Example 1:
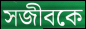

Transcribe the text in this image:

সজীবকে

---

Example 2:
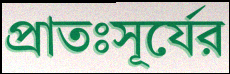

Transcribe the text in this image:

প্রাতঃসূর্যের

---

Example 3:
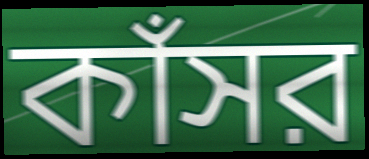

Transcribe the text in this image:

কাঁসর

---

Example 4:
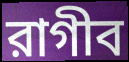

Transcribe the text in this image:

রাগীব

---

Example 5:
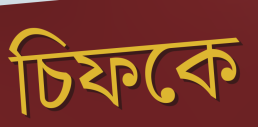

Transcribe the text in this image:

চিফকে